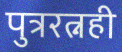
पुत्ररत्नही